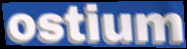
ostium